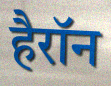
हैरॉन